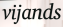
vijands